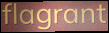
flagrant